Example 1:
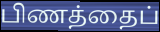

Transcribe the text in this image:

பிணத்தைப்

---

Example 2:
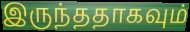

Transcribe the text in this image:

இருந்ததாகவும்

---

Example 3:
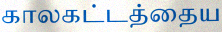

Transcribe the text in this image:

காலகட்டத்தைய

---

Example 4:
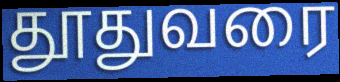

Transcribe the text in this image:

தூதுவரை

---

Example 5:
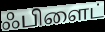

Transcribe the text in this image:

ஃபிளைட்